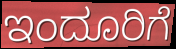
ಇಂದೂರಿಗೆ